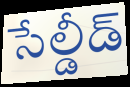
సేల్డీడ్